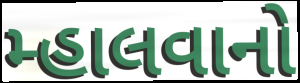
મ્હાલવાનો